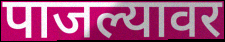
पाजल्यावर